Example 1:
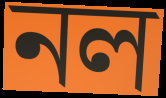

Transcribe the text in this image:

নল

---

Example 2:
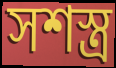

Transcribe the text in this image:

সশস্ত্ৰ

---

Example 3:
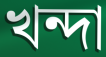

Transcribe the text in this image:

খন্দা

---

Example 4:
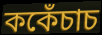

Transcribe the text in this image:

ককেঁচাচ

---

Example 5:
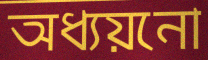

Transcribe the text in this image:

অধ্যয়নো